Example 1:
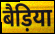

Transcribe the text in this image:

बैड़िया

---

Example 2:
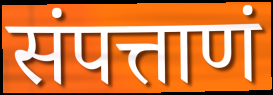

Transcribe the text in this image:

संपत्ताणं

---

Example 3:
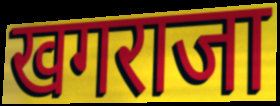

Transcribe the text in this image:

खगराजा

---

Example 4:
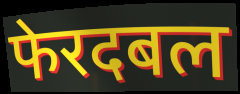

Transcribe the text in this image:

फेरदबल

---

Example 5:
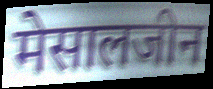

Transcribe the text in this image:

मेसालजीन